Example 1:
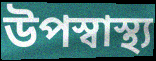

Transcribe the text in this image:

উপস্বাস্থ্য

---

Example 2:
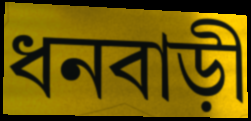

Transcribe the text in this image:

ধনবাড়ী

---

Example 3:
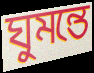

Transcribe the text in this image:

ঘুমন্তে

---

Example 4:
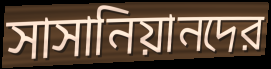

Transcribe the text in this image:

সাসানিয়ানদের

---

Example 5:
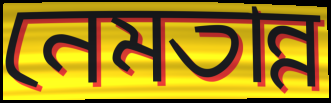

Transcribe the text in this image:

নেমতান্ন